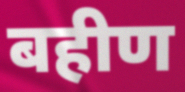
बहीण